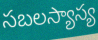
సబలస్యాస్య